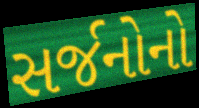
સર્જનોનો